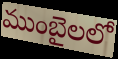
ముంబైలలో